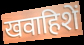
खवाहिशें